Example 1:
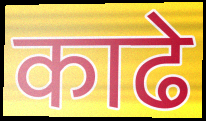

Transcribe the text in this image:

काढे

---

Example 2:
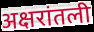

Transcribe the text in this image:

अक्षरांतली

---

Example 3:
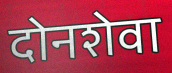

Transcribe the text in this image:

दोनशेवा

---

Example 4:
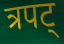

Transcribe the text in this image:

त्रपट्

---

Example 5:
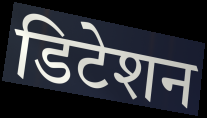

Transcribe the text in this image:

डिटेशन